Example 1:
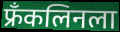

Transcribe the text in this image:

फ्रॅंकलिनला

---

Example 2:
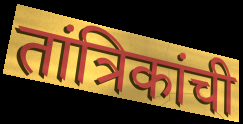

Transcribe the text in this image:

तांत्रिकांची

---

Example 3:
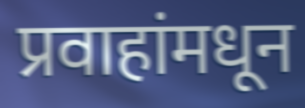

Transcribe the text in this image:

प्रवाहांमधून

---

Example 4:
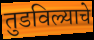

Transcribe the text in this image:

तुडविल्याचे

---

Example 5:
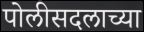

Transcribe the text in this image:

पोलीसदलाच्या